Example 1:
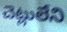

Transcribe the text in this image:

చెట్లులేని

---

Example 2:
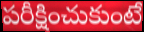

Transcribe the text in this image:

పరీక్షించుకుంటే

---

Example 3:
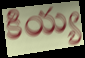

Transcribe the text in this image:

కియ్య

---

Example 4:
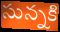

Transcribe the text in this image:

సున్నకి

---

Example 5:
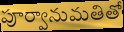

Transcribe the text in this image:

పూర్వానుమతితో